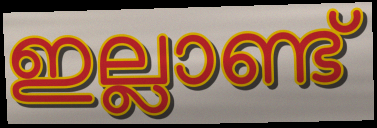
ഇല്ലാണ്ട്